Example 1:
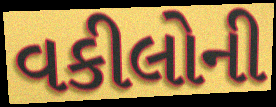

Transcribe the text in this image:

વકીલોની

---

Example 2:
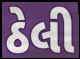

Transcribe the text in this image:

ઠેલી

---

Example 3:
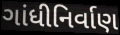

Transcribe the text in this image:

ગાંધીનિર્વાણ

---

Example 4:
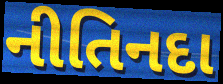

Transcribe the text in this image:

નીતિનદા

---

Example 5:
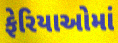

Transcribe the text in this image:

ફેરિયાઓમાં